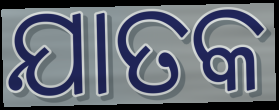
ଯାତକ